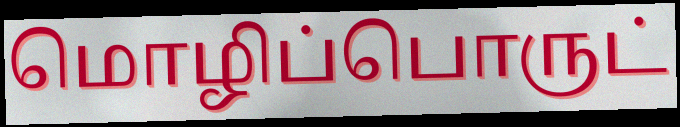
மொழிப்பொருட்